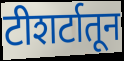
टीशर्टातून